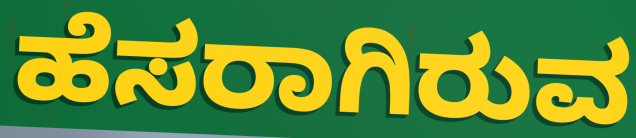
ಹೆಸರಾಗಿರುವ